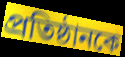
প্রতিষ্ঠানকে